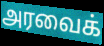
அரவைக்